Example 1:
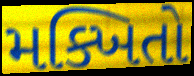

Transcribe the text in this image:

મક્ખિતો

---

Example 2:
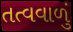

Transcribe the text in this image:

તત્વવાળું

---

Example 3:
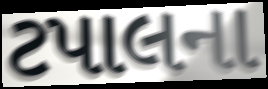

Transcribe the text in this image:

ટપાલના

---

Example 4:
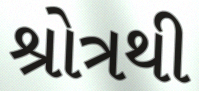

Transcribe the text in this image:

શ્રોત્રથી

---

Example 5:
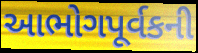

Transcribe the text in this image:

આભોગપૂર્વકની